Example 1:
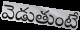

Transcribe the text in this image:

వెడుతుంటే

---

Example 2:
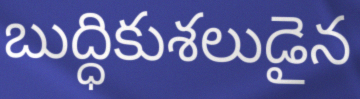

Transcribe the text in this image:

బుద్ధికుశలుడైన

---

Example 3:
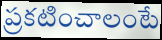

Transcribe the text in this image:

ప్రకటించాలంటే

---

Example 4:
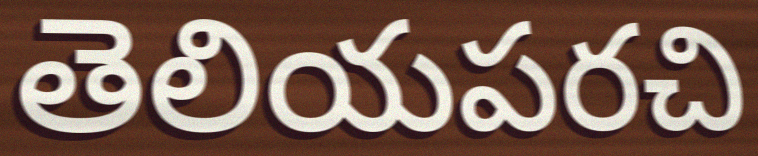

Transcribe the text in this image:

తెలియపరచి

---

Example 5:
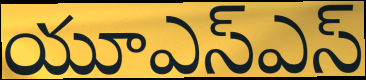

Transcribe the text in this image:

యూఎస్ఎస్